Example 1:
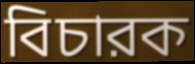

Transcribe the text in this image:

বিচারক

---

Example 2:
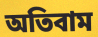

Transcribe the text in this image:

অতিবাম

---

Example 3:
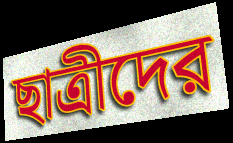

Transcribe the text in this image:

ছাত্রীদের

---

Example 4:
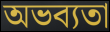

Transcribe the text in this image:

অভব্যতা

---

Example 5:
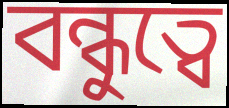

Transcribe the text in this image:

বন্ধুত্বে